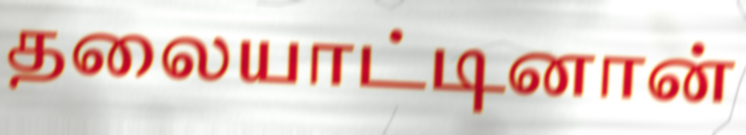
தலையாட்டினான்